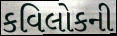
કવિલોકની